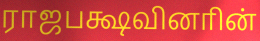
ராஜபக்ஷவினரின்